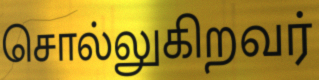
சொல்லுகிறவர்